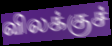
விலக்குச்